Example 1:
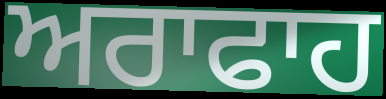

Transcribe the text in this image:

ਅਰਾਫਾਹ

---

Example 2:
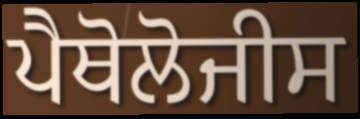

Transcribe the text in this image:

ਪੈਥੋਲੋਜੀਸ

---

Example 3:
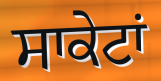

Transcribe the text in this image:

ਸਾਕੇਟਾਂ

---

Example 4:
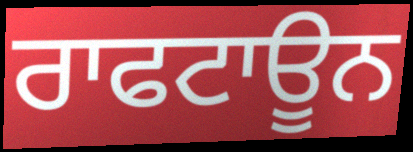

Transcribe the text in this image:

ਰਾਫਟਾਊਨ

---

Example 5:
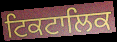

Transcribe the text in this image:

ਟਿਕਟਾਲਿਕ